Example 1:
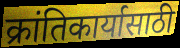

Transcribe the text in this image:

क्रांतिकार्यासाठी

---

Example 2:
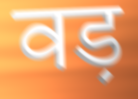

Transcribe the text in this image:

वड़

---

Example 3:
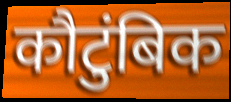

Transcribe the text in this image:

कौटुंबिक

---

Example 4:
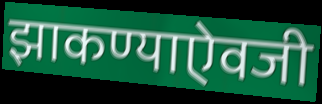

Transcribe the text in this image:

झाकण्याऐवजी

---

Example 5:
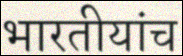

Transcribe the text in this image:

भारतीयांच